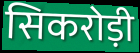
सिकरोड़ी